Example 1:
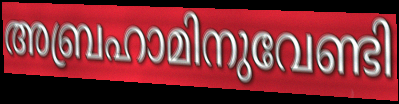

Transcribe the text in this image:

അബ്രഹാമിനുവേണ്ടി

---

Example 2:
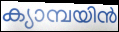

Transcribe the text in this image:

ക്യാമ്പയിൻ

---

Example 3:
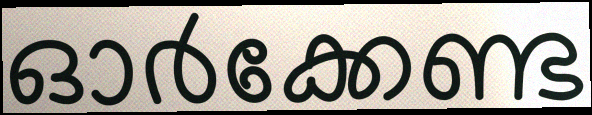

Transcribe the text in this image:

ഓർക്കേണ്ട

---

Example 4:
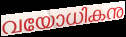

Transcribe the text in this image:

വയോധികനു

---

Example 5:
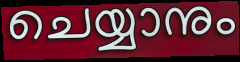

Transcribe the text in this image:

ചെയ്യാനും